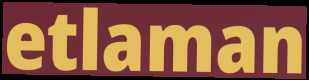
etlaman